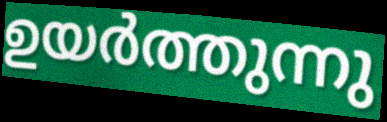
ഉയർത്തുന്നു